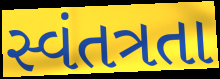
સ્વંતત્રતા